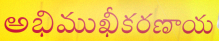
అభిముఖీకరణాయ